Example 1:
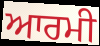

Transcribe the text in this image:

ਆਰਮੀ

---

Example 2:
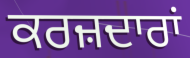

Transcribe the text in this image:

ਕਰਜ਼ਦਾਰਾਂ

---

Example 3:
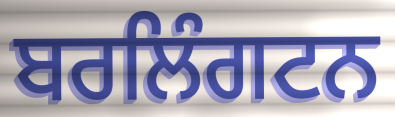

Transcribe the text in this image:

ਬਰਲਿੰਗਟਨ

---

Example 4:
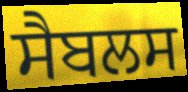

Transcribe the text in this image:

ਸੈਬਲਸ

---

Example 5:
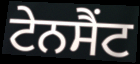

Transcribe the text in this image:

ਟੇਨਸੈਂਟ